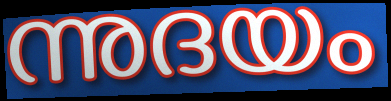
ന്നുദയം